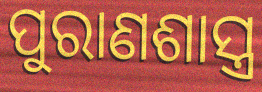
ପୁରାଣଶାସ୍ତ୍ର